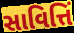
સાવિત્તિં